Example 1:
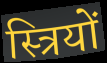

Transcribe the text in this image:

स्त्रियों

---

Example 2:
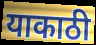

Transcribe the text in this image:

याकाठी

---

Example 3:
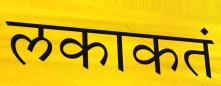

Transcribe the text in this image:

लकाकतं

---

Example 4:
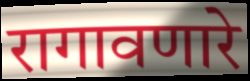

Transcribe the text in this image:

रागावणारे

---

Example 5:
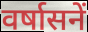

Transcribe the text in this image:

वर्षासनें